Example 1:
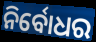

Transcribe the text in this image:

ନିର୍ବୋଧର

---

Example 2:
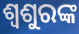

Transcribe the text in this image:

ଶ୍ୱଶୁରଙ୍କ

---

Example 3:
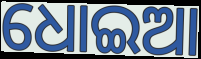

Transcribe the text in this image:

ଧୋଇଆ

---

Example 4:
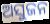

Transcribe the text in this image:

ଅସୁଜନ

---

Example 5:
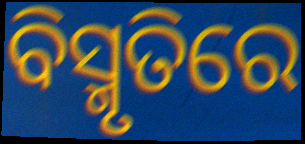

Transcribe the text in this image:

ବିସ୍ମୃତିରେ